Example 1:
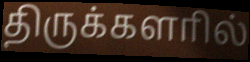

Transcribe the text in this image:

திருக்களரில்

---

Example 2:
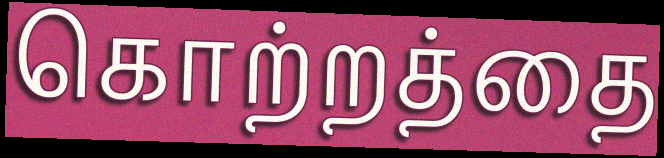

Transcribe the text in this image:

கொற்றத்தை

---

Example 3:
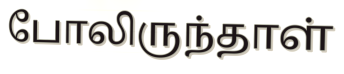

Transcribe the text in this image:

போலிருந்தாள்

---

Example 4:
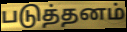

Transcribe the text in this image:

படுத்தனம்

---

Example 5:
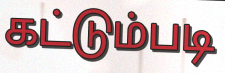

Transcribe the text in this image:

கட்டும்படி